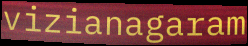
vizianagaram